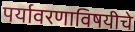
पर्यावरणाविषयीचे